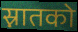
स्नातको